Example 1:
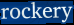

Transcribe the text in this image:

rockery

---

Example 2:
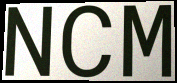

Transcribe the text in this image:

NCM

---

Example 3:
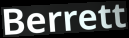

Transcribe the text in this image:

Berrett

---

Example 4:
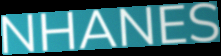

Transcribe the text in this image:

NHANES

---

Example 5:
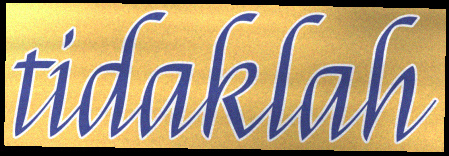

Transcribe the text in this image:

tidaklah